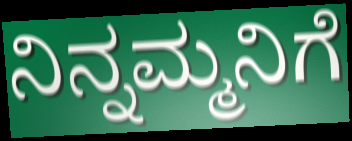
ನಿನ್ನಮ್ಮನಿಗೆ